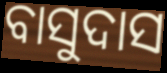
ବାସୁଦାସ